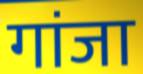
गांजा